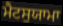
ਮੈਟਸੁਯਾਮਾ